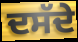
ਦਸੱਦੇ